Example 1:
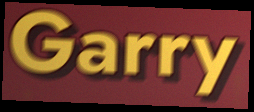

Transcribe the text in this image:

Garry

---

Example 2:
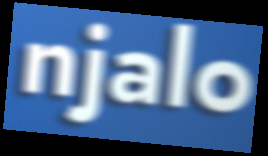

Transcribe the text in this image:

njalo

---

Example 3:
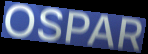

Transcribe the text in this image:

OSPAR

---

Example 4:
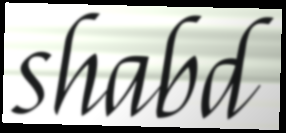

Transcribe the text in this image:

shabd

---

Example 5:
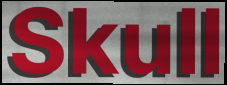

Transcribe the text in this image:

Skull